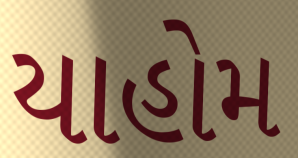
યાહોમ